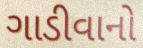
ગાડીવાનો